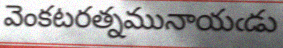
వెంకటరత్నమునాయఁడు